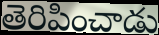
తెరిపించాడు